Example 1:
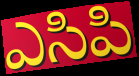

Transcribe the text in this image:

ఎసిపి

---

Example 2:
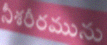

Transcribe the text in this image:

నీశరీరమును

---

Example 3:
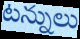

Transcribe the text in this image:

టన్నులు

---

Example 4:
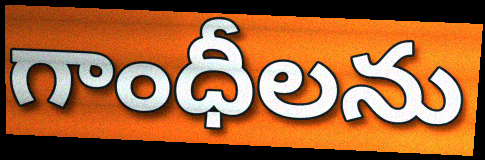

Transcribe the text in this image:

గాంధీలను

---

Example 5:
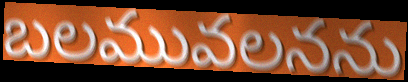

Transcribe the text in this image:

బలమువలనను